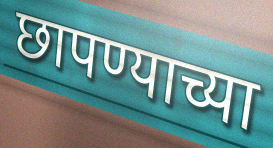
छापण्याच्या